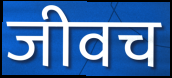
जीवच